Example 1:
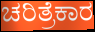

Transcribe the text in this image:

ಚರಿತ್ರೆಕಾರ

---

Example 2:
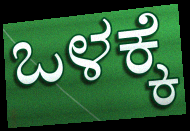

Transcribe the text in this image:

ಒಳಕ್ಕೆ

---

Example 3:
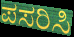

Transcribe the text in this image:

ಪಸರಿಸಿ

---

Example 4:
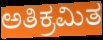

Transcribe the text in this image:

ಅತಿಕ್ರಮಿತ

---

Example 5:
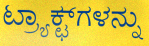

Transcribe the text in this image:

ಟ್ರ್ಯಾಕ್ಟ್‌ಗಳನ್ನು